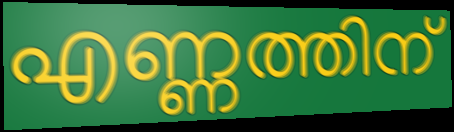
എണ്ണത്തിന്